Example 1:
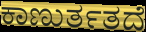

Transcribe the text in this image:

ಕಾಣುರ್ತತದೆ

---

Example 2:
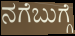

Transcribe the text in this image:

ನಗೆಬುಗ್ಗೆ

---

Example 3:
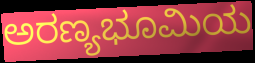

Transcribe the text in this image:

ಅರಣ್ಯಭೂಮಿಯ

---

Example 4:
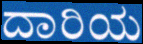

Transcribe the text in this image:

ದಾರಿಯ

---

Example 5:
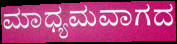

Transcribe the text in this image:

ಮಾಧ್ಯಮವಾಗದ